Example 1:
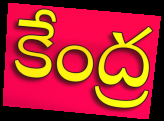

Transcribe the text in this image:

కేంద్ర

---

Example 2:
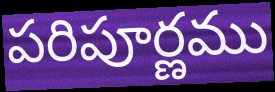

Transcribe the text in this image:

పరిపూర్ణము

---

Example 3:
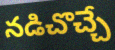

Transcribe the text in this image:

నడిచొచ్చే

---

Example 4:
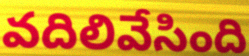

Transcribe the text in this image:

వదిలివేసింది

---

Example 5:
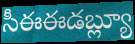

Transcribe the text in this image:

సీఈఈడబ్ల్యూ